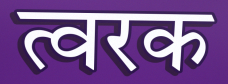
त्वरक